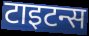
टाइटन्स